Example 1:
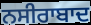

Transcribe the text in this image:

ਨਸੀਰਾਬਾਦ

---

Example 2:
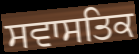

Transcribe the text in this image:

ਸਵਾਸਤਿਕ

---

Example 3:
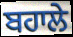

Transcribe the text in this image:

ਬਹਾਲੇ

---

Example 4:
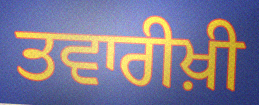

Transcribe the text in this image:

ਤਵਾਰੀਖ਼ੀ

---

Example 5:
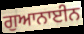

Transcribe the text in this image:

ਗੁਆਨਾਈਨ